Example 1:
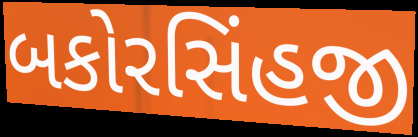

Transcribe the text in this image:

બકોરસિંહજી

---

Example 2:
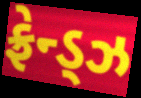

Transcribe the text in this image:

ફ્રેન્ડ્ઝ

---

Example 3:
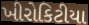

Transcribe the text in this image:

ખીરોકિટીયા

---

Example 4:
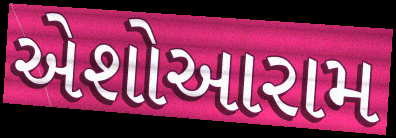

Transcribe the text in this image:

એશોઆરામ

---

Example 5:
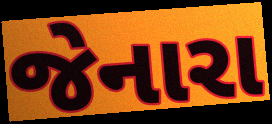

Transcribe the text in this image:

જેનારા